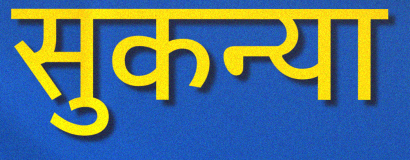
सुकन्या